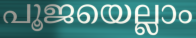
പൂജയെല്ലാം